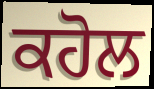
ਕਹੋਲ